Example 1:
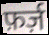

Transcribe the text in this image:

फ़र्ज़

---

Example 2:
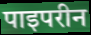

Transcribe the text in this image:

पाइपरीन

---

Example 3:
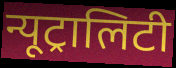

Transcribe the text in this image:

न्यूट्रालिटी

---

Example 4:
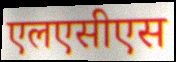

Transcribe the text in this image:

एलएसीएस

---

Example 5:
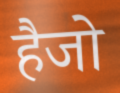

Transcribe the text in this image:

हैजो